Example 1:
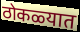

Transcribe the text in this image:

ठोकळ्यात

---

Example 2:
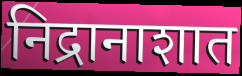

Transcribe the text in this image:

निद्रानाशात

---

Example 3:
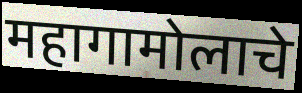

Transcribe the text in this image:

महागामोलाचे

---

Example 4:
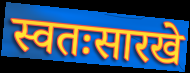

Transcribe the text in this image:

स्वतःसारखे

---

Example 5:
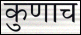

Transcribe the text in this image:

कुणाच